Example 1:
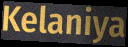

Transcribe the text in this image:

Kelaniya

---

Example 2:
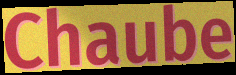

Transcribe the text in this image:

Chaube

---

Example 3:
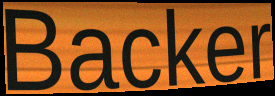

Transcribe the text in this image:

Backer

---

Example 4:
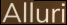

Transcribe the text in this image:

Alluri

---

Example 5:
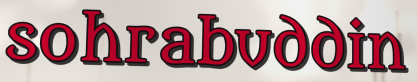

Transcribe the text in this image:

sohrabuddin